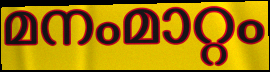
മനംമാറ്റം